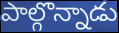
పాల్గొన్నాడు